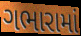
ગભારામાં